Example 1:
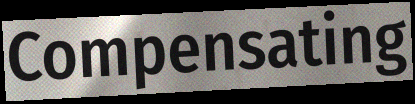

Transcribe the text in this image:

Compensating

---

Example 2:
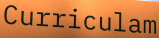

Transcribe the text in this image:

Curriculam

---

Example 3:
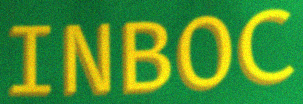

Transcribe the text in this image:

INBOC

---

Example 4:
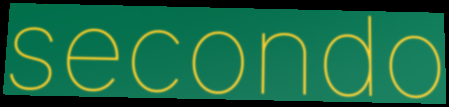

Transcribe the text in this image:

secondo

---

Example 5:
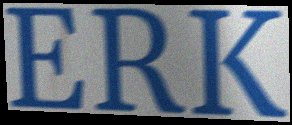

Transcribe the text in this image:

ERK